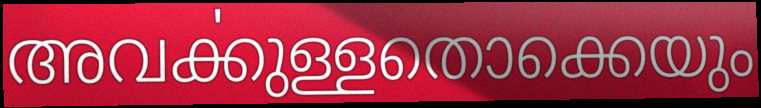
അവൎക്കുള്ളതൊക്കെയും